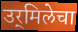
उर्मिलेचा